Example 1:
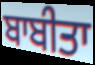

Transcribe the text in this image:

ਬਾਬੀਤਾ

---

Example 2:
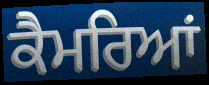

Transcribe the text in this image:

ਕੈਮਰਿਆਂ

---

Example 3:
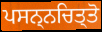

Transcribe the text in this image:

ਪਸਨ੍ਨਚਿਤ੍ਤੋ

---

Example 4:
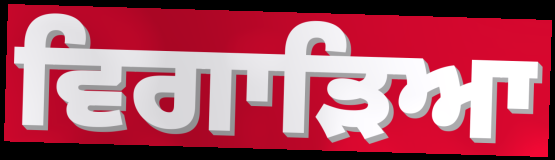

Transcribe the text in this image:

ਵਿਗਾੜਿਆ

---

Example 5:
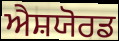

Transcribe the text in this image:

ਐਸ਼ਯੋਰਡ